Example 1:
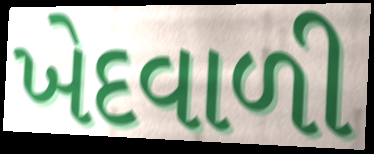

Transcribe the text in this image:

ખેદવાળી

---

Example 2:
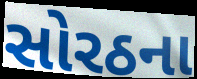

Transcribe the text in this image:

સોરઠના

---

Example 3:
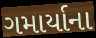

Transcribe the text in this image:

ગમાર્યાના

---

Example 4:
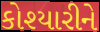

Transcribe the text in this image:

કોશ્યારીને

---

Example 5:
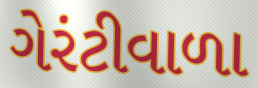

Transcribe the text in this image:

ગેરંટીવાળા